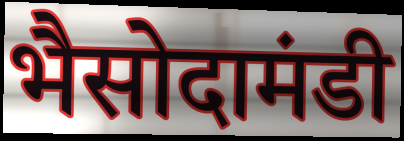
भैसोदामंडी